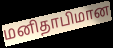
மனிதாபிமான